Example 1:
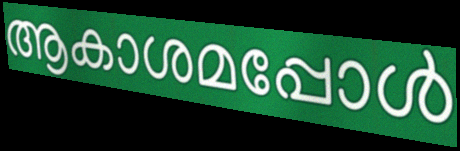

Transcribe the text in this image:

ആകാശമപ്പോൾ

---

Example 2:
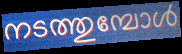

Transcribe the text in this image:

നടത്തുമ്പോൾ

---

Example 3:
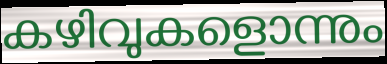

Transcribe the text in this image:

കഴിവുകളൊന്നും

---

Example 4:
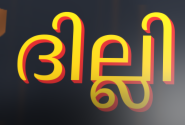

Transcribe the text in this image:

ദില്ലി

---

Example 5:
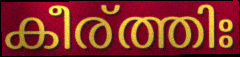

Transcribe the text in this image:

കീര്ത്തിഃ